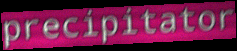
precipitator